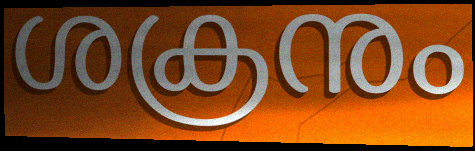
ശക്രനും